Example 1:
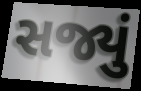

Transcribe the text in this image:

સજ્યું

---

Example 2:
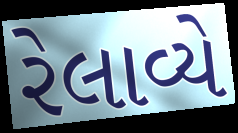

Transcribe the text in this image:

રેલાવ્યે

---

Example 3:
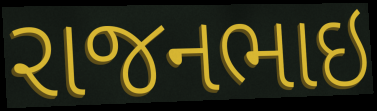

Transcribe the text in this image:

રાજનભાઇ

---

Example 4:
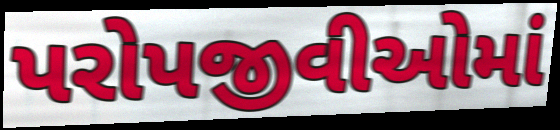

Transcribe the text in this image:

પરોપજીવીઓમાં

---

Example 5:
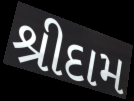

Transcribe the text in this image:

શ્રીદામ